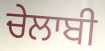
ਚੇਲਾਬੀ